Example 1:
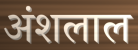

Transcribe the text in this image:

अंशलाल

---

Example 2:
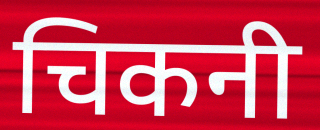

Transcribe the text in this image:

चिकनी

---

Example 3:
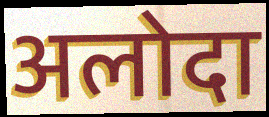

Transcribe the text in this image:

अलोदा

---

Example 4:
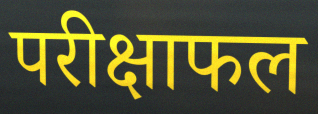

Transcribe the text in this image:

परीक्षाफल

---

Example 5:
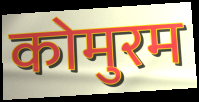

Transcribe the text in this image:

कोमुरम